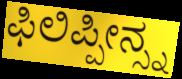
ಫಿಲಿಪ್ಪೀನ್ಸ್ನ